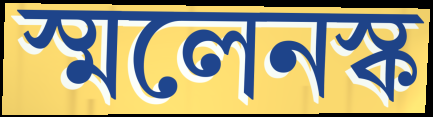
স্মলেনস্ক